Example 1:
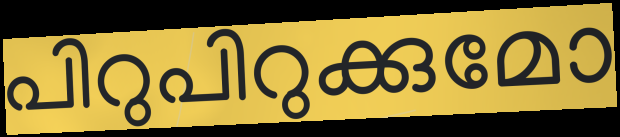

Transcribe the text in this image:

പിറുപിറുക്കുമോ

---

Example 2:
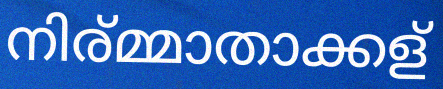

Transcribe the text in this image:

നിര്മ്മാതാക്കള്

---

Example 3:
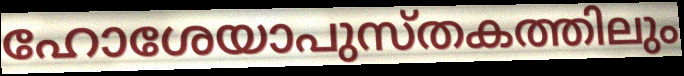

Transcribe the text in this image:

ഹോശേയാപുസ്തകത്തിലും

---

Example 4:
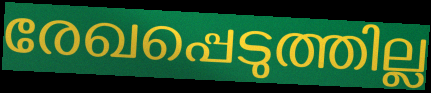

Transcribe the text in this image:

രേഖപ്പെടുത്തില്ല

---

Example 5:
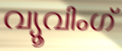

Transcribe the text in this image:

വ്യൂവിംഗ്